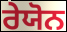
ਰੇਯੋਨ